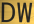
DW